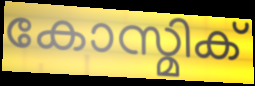
കോസ്മിക്